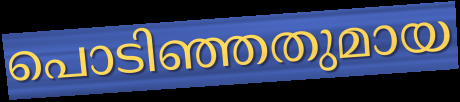
പൊടിഞ്ഞതുമായ